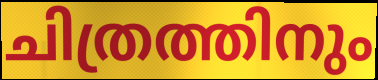
ചിത്രത്തിനും